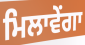
ਮਿਲਾਵੇਂਗਾ